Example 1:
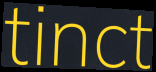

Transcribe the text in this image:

tinct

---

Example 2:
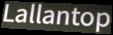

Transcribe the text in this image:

Lallantop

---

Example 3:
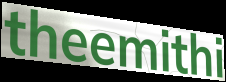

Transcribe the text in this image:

theemithi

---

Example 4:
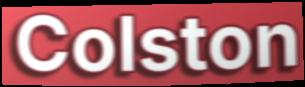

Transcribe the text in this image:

Colston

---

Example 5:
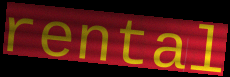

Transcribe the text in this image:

rental